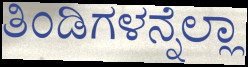
ತಿಂಡಿಗಳನ್ನೆಲ್ಲಾ